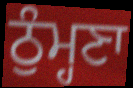
ਠੁੰਮ੍ਹਣਾ